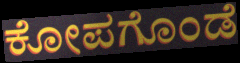
ಕೋಪಗೊಂಡೆ